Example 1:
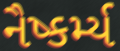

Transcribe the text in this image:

નૈષ્કર્મ્ય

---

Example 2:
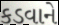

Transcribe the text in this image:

કડવાને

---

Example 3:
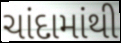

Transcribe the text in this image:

ચાંદામાંથી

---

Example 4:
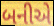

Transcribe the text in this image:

બનીએ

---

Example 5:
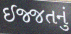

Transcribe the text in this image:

ઈજ્જતનું